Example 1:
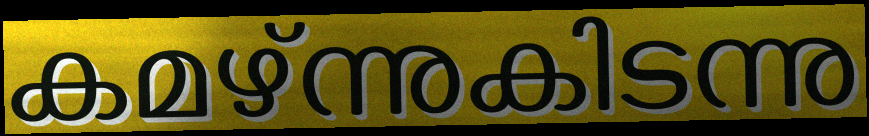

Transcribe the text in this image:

കമഴ്ന്നുകിടന്നു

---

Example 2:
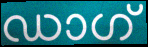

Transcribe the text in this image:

ഡാഗ്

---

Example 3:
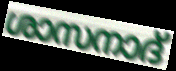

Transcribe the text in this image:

ശാസനാദ്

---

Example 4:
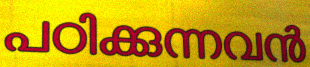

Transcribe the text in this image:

പഠിക്കുന്നവൻ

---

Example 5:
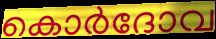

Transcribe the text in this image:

കൊർദോവ